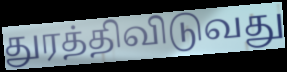
துரத்திவிடுவது